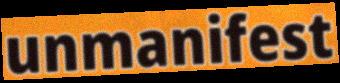
unmanifest